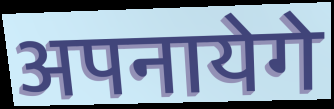
अपनायेगे